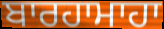
ਬਾਰਹਾਮਾਹਾ